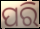
ପରି